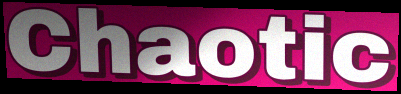
Chaotic